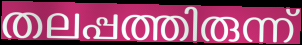
തലപ്പത്തിരുന്ന്